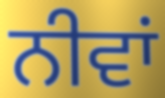
ਨੀਵਾਂ